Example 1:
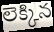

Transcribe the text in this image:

లెక్కిన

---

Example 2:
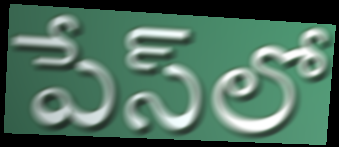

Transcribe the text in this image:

పేస్‌లో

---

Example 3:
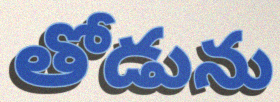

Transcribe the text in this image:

తోడును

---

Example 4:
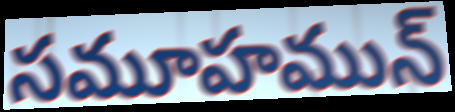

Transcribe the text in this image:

సమూహమున్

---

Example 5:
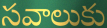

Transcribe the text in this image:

సవాలుకు